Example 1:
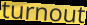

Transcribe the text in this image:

turnout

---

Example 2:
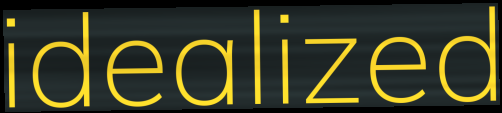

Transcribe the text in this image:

idealized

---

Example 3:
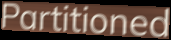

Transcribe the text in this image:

Partitioned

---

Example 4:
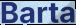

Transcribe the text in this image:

Barta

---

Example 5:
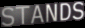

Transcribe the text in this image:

STANDS